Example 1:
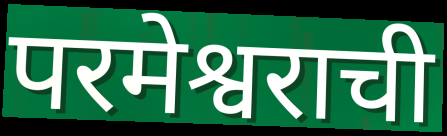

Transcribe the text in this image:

परमेश्वराची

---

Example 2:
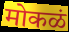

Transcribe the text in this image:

मोकळं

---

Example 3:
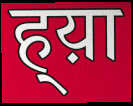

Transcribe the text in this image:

ह्य़ा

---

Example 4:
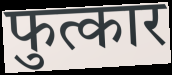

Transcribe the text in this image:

फुत्कार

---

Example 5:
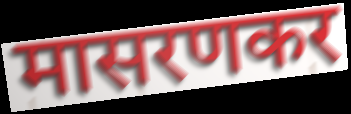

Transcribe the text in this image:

मासरणकर